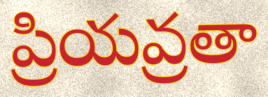
ప్రియవ్రతా